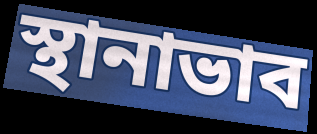
স্থানাভাব